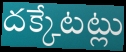
దక్కేటట్లు